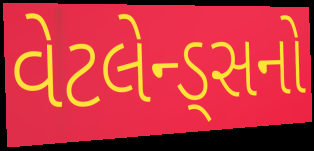
વેટલેન્ડ્સનો